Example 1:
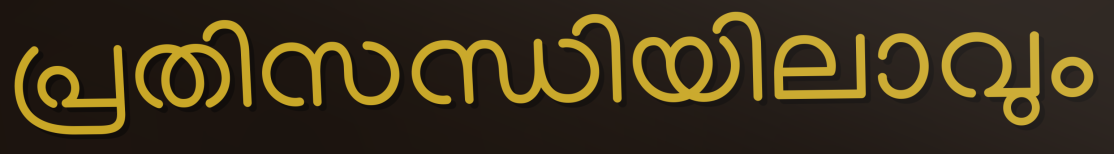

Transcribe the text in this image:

പ്രതിസന്ധിയിലാവും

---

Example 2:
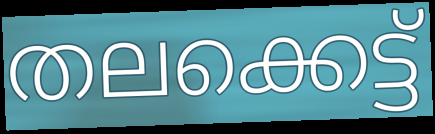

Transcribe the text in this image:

തലക്കെട്ട്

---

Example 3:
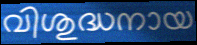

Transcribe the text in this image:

വിശുദ്ധനായ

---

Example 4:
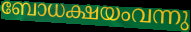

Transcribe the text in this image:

ബോധക്ഷയംവന്നു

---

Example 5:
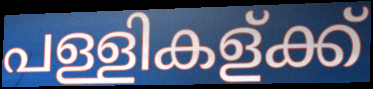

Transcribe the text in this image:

പള്ളികള്ക്ക്